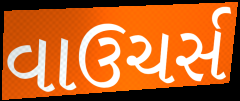
વાઉચર્સ